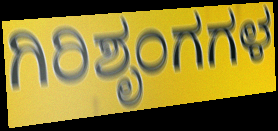
ಗಿರಿಶೃಂಗಗಳ